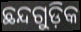
ଛନ୍ଦଗୁଡ଼ିକ